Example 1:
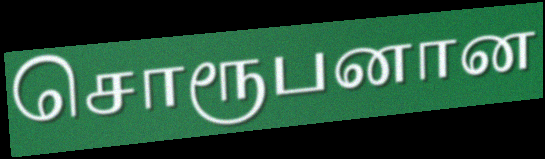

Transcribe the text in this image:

சொரூபனான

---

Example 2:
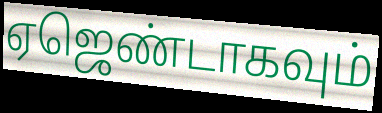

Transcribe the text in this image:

ஏஜெண்டாகவும்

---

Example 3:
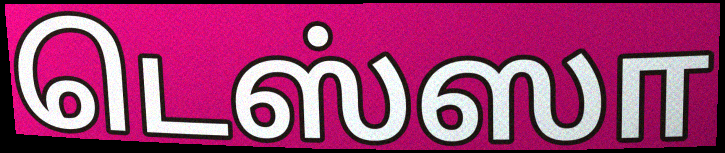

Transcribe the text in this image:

டெஸ்ஸா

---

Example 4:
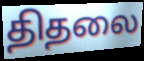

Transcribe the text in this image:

திதலை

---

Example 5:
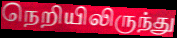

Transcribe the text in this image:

நெறியிலிருந்து